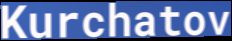
Kurchatov